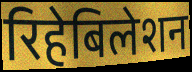
रिहेबिलेशन